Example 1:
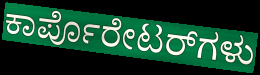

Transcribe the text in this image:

ಕಾರ್ಪೊರೇಟರ್‌ಗಳು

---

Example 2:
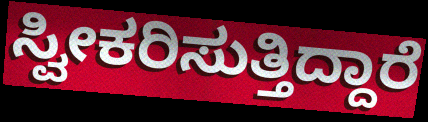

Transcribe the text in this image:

ಸ್ವೀಕರಿಸುತ್ತಿದ್ದಾರೆ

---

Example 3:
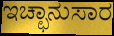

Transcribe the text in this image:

ಇಚ್ಛಾನುಸಾರ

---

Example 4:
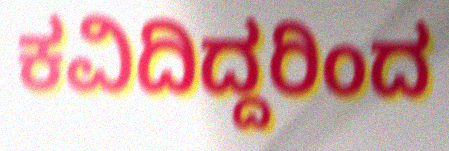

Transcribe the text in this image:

ಕವಿದಿದ್ದರಿಂದ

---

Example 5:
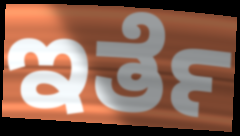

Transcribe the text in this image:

ಇರ್ತೆ